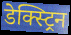
डेक्स्ट्रिन